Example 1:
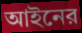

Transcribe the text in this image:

আইনের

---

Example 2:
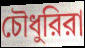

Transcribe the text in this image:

চৌধুরিরা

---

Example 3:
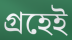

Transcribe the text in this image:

গ্রহেই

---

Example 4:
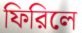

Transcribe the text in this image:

ফিরিলে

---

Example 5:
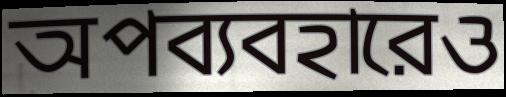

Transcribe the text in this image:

অপব্যবহারেও